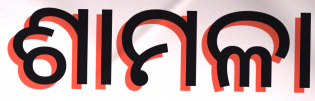
ଶାମଳା